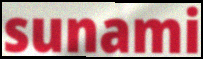
sunami